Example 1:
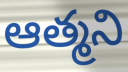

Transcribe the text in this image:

ఆత్మని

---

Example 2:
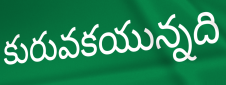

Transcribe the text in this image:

కురువకయున్నది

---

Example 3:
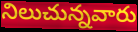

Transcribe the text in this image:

నిలుచున్నవారు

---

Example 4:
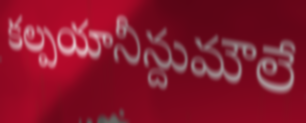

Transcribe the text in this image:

కల్పయానీన్దుమౌలే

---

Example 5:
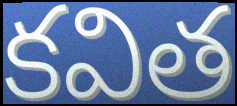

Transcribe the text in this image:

కవిత